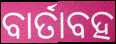
ବାର୍ତାବହ